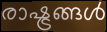
രാഷ്ട്രങ്ങൾ